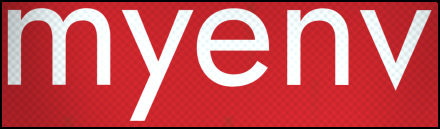
myenv